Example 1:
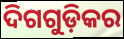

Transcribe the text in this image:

ଦିଗଗୁଡ଼ିକର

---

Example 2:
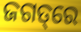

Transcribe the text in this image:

ଜଗତ୍‌ରେ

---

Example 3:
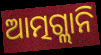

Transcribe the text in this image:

ଆତ୍ମଗ୍ଲାନି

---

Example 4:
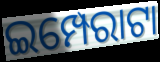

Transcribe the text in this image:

ଇମ୍ପେରାଟା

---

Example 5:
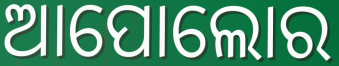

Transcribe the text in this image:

ଆପୋଲୋର